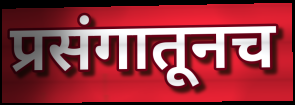
प्रसंगातूनच